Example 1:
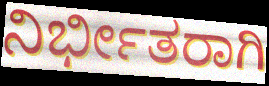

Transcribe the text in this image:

ನಿರ್ಭೀತರಾಗಿ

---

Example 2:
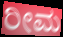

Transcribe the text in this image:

ರೀಮ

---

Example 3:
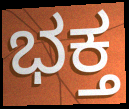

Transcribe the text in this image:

ಭಕ್ತ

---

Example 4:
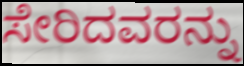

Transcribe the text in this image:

ಸೇರಿದವರನ್ನು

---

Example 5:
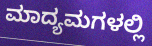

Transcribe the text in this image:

ಮಾದ್ಯಮಗಳಲ್ಲಿ